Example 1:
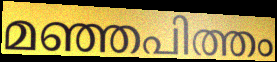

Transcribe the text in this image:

മഞ്ഞപിത്തം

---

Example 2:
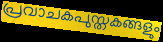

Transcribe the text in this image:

പ്രവാചകപുസ്തകങ്ങളും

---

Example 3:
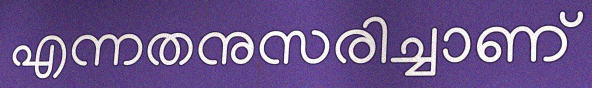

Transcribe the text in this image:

എന്നതനുസരിച്ചാണ്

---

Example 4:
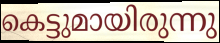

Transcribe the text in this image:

കെട്ടുമായിരുന്നു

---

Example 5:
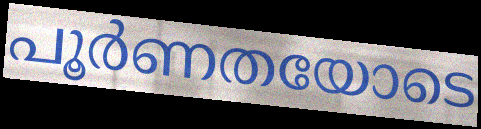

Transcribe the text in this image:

പൂർണതയോടെ